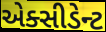
એક્સીડેન્ટ